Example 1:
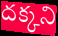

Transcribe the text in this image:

దక్కని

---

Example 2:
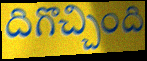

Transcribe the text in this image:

దిగొచ్చింది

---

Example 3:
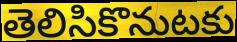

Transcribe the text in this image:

తెలిసికొనుటకు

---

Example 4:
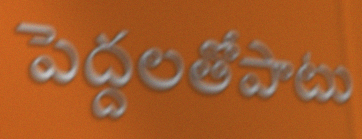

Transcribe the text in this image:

పెద్దలతోపాటు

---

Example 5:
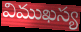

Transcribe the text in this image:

విముఖస్య